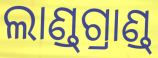
ଲାଣ୍ଡ୍‍ଗ୍ରାଣ୍ଡ୍